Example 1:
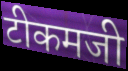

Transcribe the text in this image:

टीकमजी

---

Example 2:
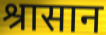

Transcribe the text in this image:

श्रासान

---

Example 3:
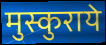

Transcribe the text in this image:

मुस्कुराये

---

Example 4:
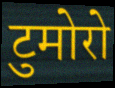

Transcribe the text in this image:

टुमोरो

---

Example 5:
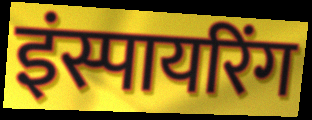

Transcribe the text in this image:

इंस्पायरिंग